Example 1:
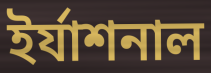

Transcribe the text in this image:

ইর্যাশনাল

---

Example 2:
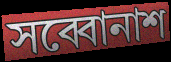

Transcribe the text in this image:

সব্বোনাশ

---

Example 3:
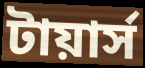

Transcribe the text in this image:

টায়ার্স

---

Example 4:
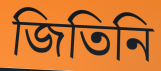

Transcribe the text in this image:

জিতিনি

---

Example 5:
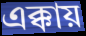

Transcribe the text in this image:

এক্কায়